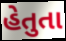
હેતુતા